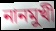
নানমুখী